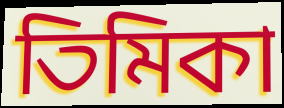
তিমিকা